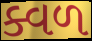
ક્વળ